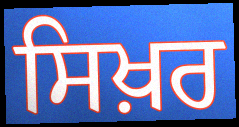
ਸਿਖ਼ਰ